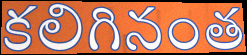
కలిగినంత